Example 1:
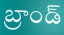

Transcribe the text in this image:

బ్రాండ్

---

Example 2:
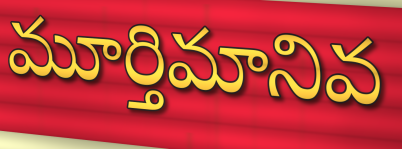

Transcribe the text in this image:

మూర్తిమానివ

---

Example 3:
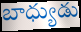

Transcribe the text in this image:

బాధ్యుడు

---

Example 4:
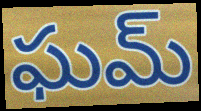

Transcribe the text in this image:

ఘమ్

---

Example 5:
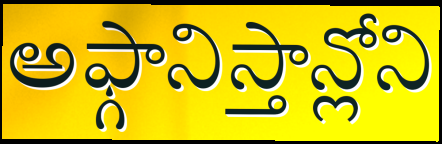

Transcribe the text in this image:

అఫ్గానిస్తాన్లోని